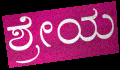
ಶ್ರೇಯ